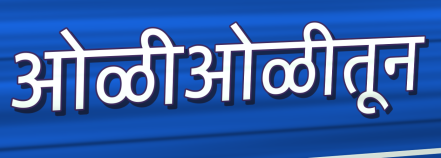
ओळीओळीतून